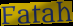
Fatah